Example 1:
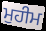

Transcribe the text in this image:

ਮੁਹੀਮ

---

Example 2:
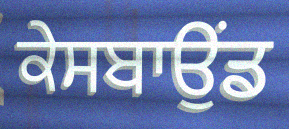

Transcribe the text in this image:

ਕੇਸਬਾਉਂਡ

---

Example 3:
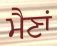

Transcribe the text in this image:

ਮੈਣਾਂ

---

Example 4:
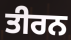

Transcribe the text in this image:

ਤੀਰਨ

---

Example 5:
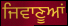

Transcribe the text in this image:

ਜਿਵਾਣੂਆਂ